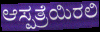
ಆಸ್ಪತ್ರೆಯಿರಲಿ